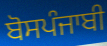
ਬੋਸਪੰਜਾਬੀ